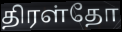
திரள்தோ